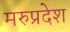
मरुप्रदेश